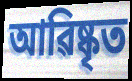
আৱিষ্কৃত